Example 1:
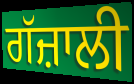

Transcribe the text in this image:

ਗੱਜ਼ਾਲੀ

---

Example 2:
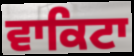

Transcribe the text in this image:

ਵਾਕਿਟਾ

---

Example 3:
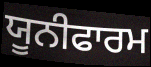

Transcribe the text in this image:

ਯੂਨੀਫਾਰਮ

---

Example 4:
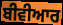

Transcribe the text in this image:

ਬੀਵੀਆਰ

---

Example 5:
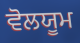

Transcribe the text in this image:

ਵੋਲਯੂਮ